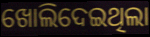
ଖୋଲିଦେଇଥିଲା